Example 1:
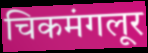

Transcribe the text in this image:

चिकमंगलूर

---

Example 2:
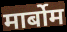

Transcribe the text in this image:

मार्बोम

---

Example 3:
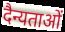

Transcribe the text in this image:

दैन्यताओं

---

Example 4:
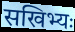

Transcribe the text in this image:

सखिभ्यः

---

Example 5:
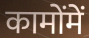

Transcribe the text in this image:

कामोंमें